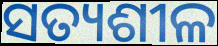
ସତ୍ୟଶୀଳ